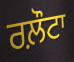
ਰਲ਼ੌਟਾ